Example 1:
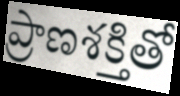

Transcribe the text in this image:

ప్రాణశక్తితో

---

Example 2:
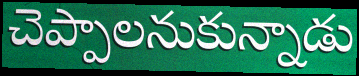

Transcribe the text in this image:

చెప్పాలనుకున్నాడు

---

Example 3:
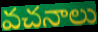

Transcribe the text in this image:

వచనాలు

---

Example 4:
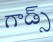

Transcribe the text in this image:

గాడ్స్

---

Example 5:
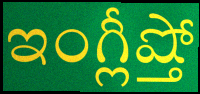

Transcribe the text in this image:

ఇంగ్లీష్తో